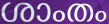
ശാംതം